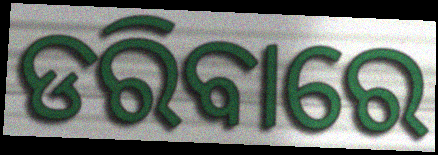
ଡରିବାରେ